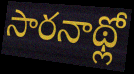
సారనాథ్లో